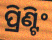
ପ୍ରିଣ୍ଟିଂ